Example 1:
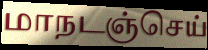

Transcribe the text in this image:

மாநடஞ்செய்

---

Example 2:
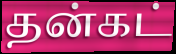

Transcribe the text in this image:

தன்கட்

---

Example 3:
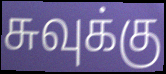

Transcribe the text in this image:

சுவுக்கு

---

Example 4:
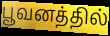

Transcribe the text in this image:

பூவனத்தில்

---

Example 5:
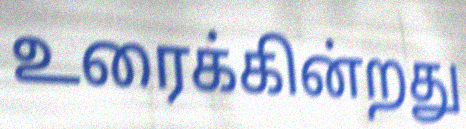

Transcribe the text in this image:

உரைக்கின்றது